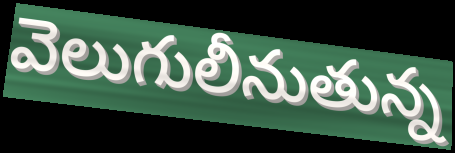
వెలుగులీనుతున్న